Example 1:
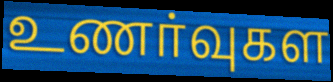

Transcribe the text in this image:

உணர்வுகள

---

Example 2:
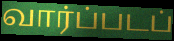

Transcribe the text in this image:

வார்ப்படப்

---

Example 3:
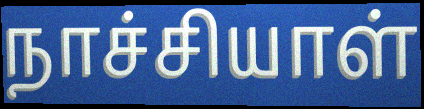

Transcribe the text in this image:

நாச்சியாள்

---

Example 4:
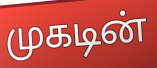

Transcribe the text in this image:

முகடின்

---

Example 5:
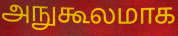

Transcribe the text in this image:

அநுகூலமாக